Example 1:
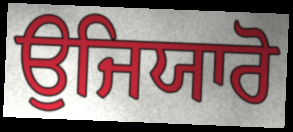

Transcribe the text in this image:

ਉਜਿਯਾਰੋ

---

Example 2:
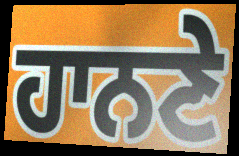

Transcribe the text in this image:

ਹਾਨਣੇ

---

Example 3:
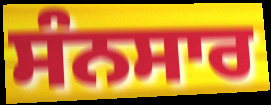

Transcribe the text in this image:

ਸੰਨਸਾਰ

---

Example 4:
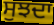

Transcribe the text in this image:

ਸੁਝਦਾ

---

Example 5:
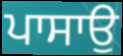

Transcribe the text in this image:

ਪਾਸਾਉ